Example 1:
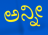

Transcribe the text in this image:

ಅನ್ನೀ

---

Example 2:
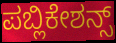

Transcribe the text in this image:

ಪಬ್ಲಿಕೇಶನ್ಸ್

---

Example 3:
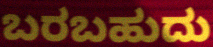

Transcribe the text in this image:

ಬರಬಹುದು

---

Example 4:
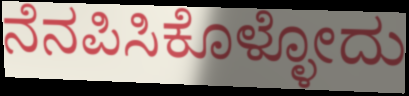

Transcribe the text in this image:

ನೆನಪಿಸಿಕೊಳ್ಳೋದು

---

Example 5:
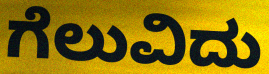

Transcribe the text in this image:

ಗೆಲುವಿದು